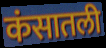
कंसातली